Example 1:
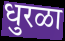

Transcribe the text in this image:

धुरळा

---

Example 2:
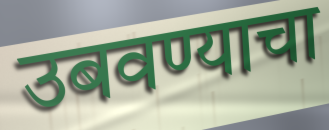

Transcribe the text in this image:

उबवण्याचा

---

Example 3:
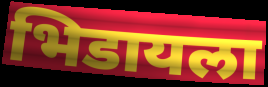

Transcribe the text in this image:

भिडायला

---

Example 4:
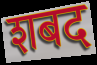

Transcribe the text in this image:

शबद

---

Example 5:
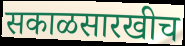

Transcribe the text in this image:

सकाळसारखीच